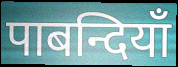
पाबन्दियाँ